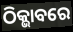
ଠିକ୍ଭାବରେ